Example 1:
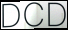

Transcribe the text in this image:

DCD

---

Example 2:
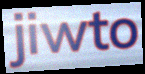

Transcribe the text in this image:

jiwto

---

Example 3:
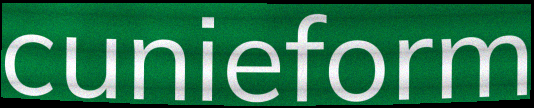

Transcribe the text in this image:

cunieform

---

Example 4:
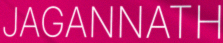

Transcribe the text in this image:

JAGANNATH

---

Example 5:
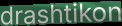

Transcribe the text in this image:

drashtikon